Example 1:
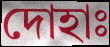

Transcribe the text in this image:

দোহাঃ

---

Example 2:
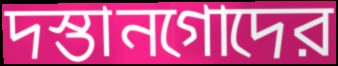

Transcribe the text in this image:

দস্তানগোদের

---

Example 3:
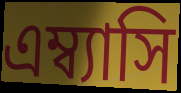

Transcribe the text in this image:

এম্ব্যাসি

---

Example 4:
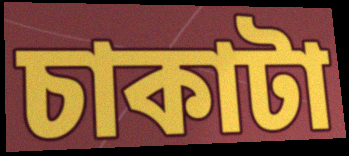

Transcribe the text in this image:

চাকাটা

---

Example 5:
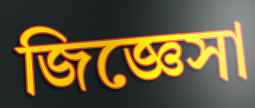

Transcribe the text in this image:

জিজ্ঞেসা